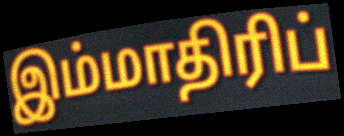
இம்மாதிரிப்